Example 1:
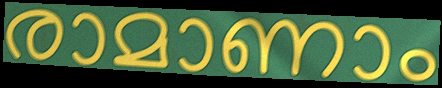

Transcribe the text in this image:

രാമാണാം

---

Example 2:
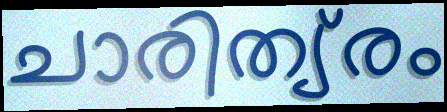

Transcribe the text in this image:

ചാരിത്യ്രം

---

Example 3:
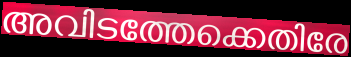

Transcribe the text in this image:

അവിടത്തേക്കെതിരേ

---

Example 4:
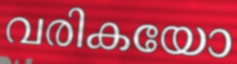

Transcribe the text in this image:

വരികയോ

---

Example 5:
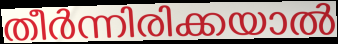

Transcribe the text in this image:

തീർന്നിരിക്കയാൽ